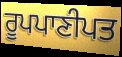
ਰੂਪਪਾਣੀਪਤ